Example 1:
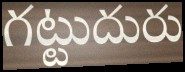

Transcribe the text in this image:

గట్టుదురు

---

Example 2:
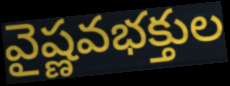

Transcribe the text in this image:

వైష్ణవభక్తుల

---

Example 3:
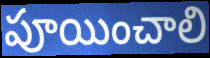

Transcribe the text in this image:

పూయించాలి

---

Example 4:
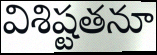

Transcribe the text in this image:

విశిష్టతనూ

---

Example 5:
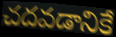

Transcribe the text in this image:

చదవడానికే